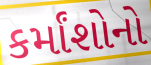
કર્માંશોનો